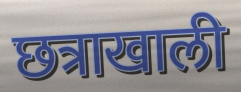
छत्राखाली